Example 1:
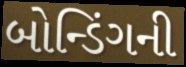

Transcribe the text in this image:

બોન્ડિંગની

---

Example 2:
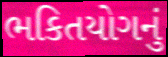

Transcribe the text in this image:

ભકિતયોગનું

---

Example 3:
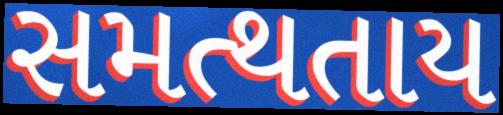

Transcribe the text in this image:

સમત્થતાય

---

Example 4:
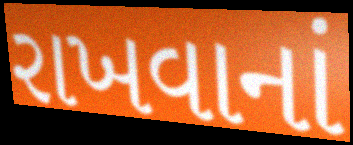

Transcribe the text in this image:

રાખવાનાં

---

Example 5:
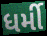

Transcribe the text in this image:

ધર્મી